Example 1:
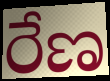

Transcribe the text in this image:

రేణ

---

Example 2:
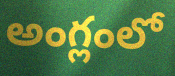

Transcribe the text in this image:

అంగ్లంలో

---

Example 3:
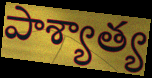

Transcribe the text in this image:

పాశ్యాత్య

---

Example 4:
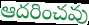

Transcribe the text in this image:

ఆదరించవు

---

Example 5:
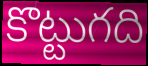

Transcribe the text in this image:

కొట్టుగది